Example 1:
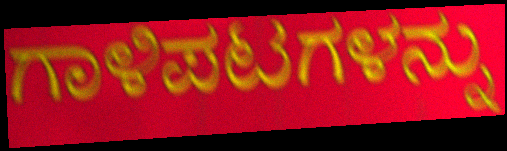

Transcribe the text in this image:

ಗಾಳಿಪಟಗಳನ್ನು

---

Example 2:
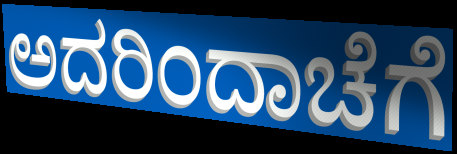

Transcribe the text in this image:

ಅದರಿಂದಾಚೆಗೆ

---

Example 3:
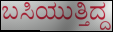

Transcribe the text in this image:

ಬಸಿಯುತ್ತಿದ್ದ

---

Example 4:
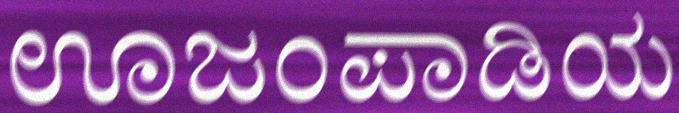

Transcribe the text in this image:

ಊಜಂಪಾಡಿಯ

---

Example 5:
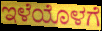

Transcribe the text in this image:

ಇಳೆಯೊಳಗೆ